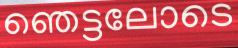
ഞെട്ടലോടെ